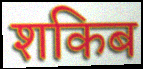
शकिब